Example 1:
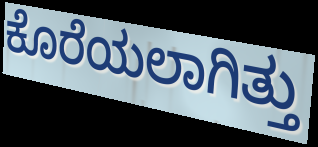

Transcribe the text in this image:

ಕೊರೆಯಲಾಗಿತ್ತು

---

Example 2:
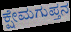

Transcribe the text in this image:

ಕ್ಷೇಮಗುಪ್ತನ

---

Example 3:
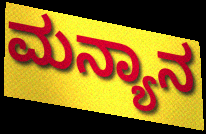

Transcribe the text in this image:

ಮನ್ಯಾನ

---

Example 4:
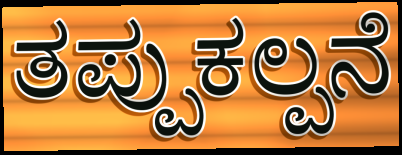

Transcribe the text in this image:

ತಪ್ಪುಕಲ್ಪನೆ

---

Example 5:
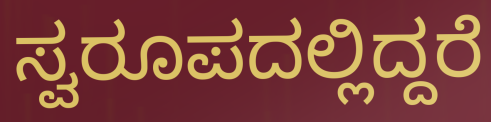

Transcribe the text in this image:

ಸ್ವರೂಪದಲ್ಲಿದ್ದರೆ